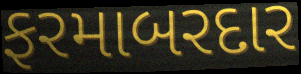
ફરમાબરદાર